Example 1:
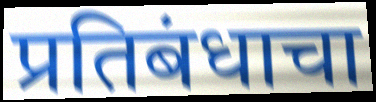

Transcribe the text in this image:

प्रतिबंधाचा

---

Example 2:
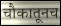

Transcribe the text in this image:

चौकातूनच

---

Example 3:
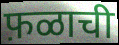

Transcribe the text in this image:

फ़ळाची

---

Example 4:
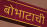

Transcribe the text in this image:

बोभाटाची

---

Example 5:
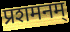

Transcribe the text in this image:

प्रशमनम्